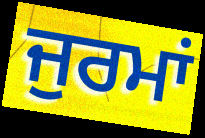
ਜੁਰਮਾਂ